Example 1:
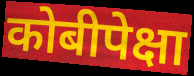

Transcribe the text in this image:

कोबीपेक्षा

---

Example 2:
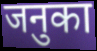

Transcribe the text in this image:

जनुका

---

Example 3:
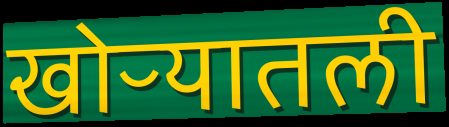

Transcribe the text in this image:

खोऱ्यातली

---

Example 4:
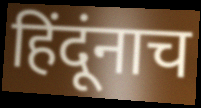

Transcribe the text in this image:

हिंदूंनाच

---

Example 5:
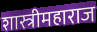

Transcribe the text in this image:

शास्त्रीमहाराज